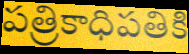
పత్రికాధిపతికి